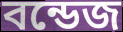
বন্ডেজ